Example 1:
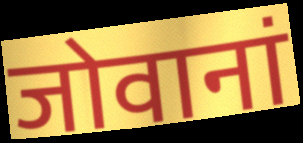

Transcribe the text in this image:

जोवानां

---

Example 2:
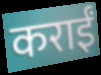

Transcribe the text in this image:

कराईं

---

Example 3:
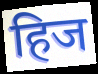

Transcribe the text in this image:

हिज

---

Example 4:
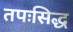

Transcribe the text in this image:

तपःसिद्ध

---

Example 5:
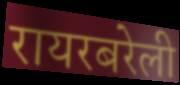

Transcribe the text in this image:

रायरबरेली